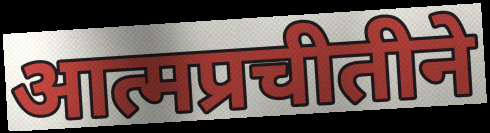
आत्मप्रचीतीने